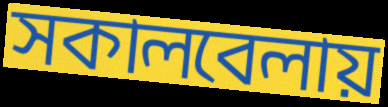
সকালবেলায়